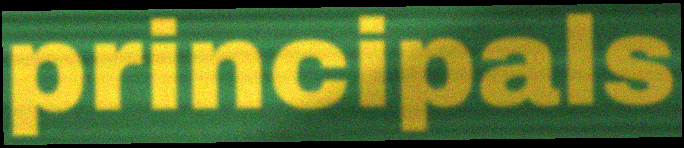
principals